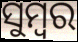
ସୁମ୍ବର